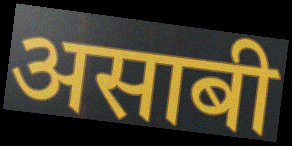
असाबी